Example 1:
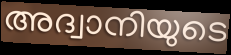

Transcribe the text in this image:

അദ്വാനിയുടെ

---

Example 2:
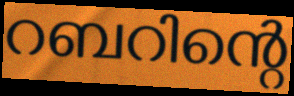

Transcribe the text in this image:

റബറിന്റെ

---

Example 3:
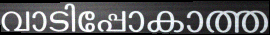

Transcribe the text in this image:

വാടിപ്പോകാത്ത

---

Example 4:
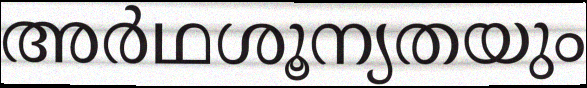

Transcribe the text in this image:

അർഥശൂന്യതയും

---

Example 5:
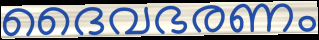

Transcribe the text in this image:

ദൈവഭരണം